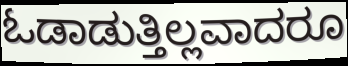
ಓಡಾಡುತ್ತಿಲ್ಲವಾದರೂ